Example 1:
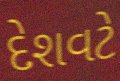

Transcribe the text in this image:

દેશવટે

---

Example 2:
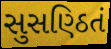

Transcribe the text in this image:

સુસણ્ઠિતં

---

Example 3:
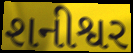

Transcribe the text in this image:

શનીશ્વર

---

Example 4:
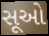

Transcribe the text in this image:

સૂઓ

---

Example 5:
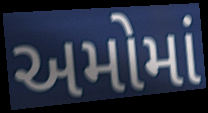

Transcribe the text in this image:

અમોમાં